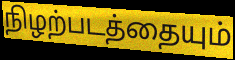
நிழற்படத்தையும்